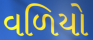
વળિયો